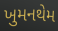
ખુમનથેમ